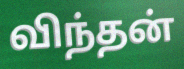
விந்தன்